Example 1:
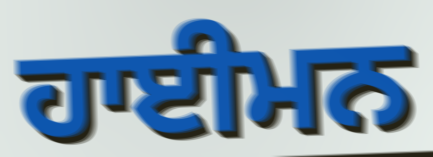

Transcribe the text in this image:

ਹਾਈਮਨ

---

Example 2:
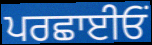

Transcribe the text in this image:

ਪਰਛਾਈਓਂ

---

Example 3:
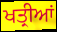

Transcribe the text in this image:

ਖਤ੍ਰੀਆਂ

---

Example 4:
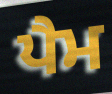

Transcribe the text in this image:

ਪੈਮ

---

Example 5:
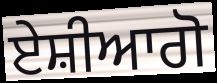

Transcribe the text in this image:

ਏਸ਼ੀਆਗੋ